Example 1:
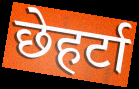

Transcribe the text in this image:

छेहर्टा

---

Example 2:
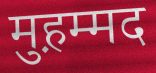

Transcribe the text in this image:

मुह़म्मद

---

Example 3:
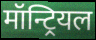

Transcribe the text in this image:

मॉन्ट्रियल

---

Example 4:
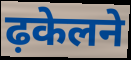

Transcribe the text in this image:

ढ़केलने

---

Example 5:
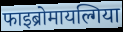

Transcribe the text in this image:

फाइब्रोमायल्गिया